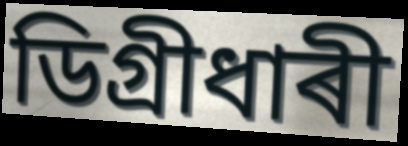
ডিগ্ৰীধাৰী